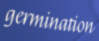
germination